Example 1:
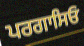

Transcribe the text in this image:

ਪਰਗਾਸਿਓ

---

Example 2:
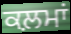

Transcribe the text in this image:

ਕਲ਼ਮਾਂ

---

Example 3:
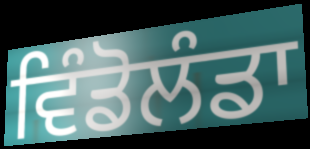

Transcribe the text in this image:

ਵਿੰਡੋਲੰਡਾ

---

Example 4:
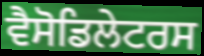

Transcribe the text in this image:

ਵੈਸੋਡਿਲੇਟਰਸ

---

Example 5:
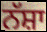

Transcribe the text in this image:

ਨੱਸ਼ਾ